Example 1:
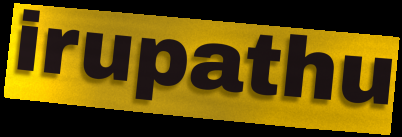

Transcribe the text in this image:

irupathu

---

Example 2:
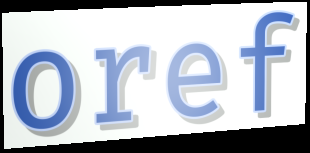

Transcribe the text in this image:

oref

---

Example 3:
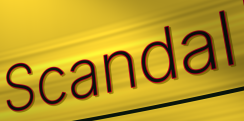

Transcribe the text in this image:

Scandal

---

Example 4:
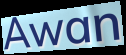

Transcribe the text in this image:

Awan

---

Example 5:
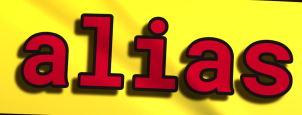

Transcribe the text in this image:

alias